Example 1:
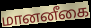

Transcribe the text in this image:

மானனீகை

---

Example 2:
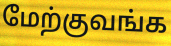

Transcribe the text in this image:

மேற்குவங்க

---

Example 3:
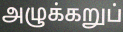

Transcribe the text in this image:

அழுக்கறுப்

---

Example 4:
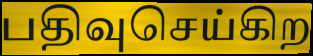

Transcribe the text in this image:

பதிவுசெய்கிற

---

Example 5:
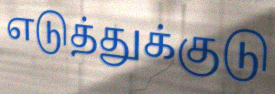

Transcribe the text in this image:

எடுத்துக்குடு